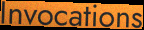
Invocations